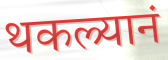
थकल्यानं